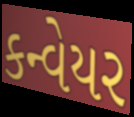
કન્વેયર